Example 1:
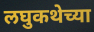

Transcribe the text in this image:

लघुकथेच्या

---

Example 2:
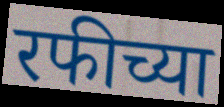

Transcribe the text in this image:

रफीच्या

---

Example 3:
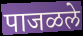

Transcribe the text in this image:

पाजळले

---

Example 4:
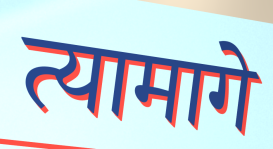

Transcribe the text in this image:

त्यामागे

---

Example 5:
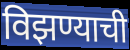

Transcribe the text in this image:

विझण्याची